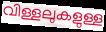
വിള്ളലുകളുള്ള